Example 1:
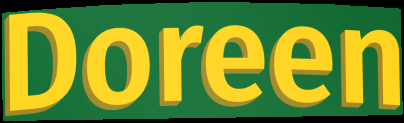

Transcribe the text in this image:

Doreen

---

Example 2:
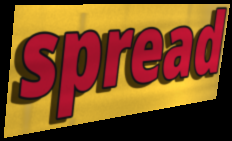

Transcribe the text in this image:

spread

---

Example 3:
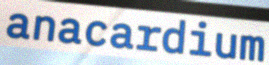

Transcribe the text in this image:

anacardium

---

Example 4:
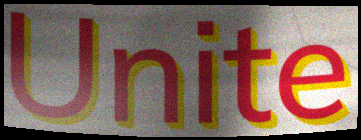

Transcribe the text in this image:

Unite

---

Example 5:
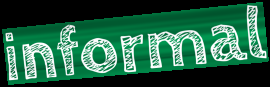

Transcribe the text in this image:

informal